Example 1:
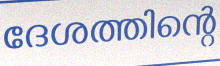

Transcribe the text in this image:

ദേശത്തിന്റെ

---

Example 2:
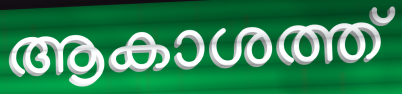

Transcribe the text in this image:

ആകാശത്ത്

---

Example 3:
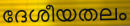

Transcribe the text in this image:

ദേശീയതലം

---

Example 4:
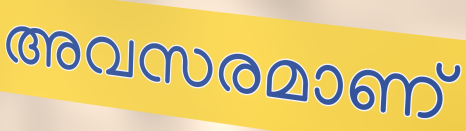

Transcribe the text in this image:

അവസരമാണ്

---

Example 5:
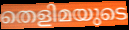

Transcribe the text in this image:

തെളിമയുടെ